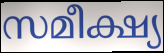
സമീക്ഷ്യ